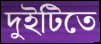
দুইটিতে